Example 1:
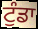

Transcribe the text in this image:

ਟੁੰਡਾ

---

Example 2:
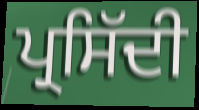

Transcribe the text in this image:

ਪ੍ਰਸਿੱਦੀ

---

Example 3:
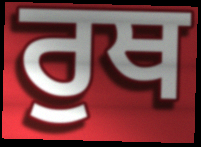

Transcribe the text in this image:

ਰੁਥ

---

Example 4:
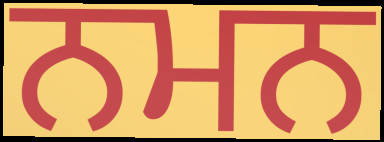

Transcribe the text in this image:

ਨਮਨ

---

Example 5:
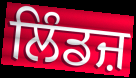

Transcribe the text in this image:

ਲਿੰਡਜ਼